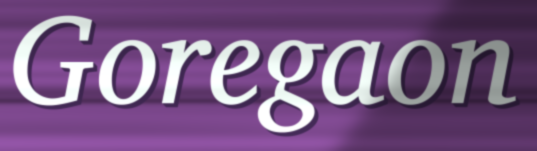
Goregaon